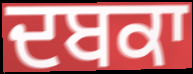
ਦਬਕਾ